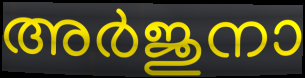
അർജുനാ